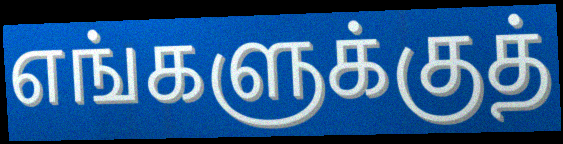
எங்களுக்குத்